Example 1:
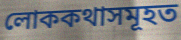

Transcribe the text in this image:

লোককথাসমূহত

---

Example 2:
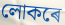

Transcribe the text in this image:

লোকৰে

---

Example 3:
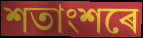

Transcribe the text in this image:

শতাংশৰে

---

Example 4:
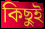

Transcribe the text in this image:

কিছুই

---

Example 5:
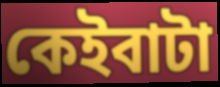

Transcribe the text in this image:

কেইবাটা